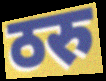
ठरु